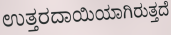
ಉತ್ತರದಾಯಿಯಾಗಿರುತ್ತದೆ